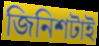
জিনিশটাই